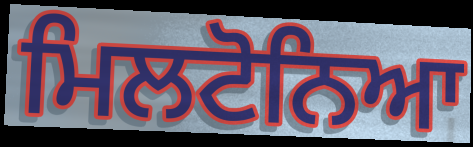
ਮਿਲਟੋਨਿਆ